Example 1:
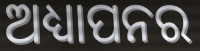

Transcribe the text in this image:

ଅଧ୍ୟାପନର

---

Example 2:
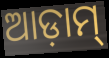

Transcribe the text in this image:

ଆଡ଼ାମ୍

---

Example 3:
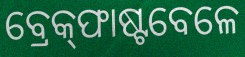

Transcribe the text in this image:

ବ୍ରେକ୍‌ଫାଷ୍ଟବେଳେ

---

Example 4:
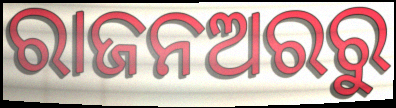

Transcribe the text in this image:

ରାଜନଅରରୁ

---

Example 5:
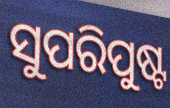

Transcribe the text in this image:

ସୁପରିପୁଷ୍ଟ